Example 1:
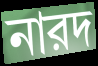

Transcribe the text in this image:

নারদ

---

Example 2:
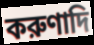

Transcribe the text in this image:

করুণাদি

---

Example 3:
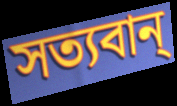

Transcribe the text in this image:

সত্যবান্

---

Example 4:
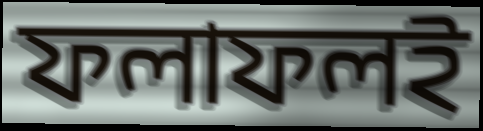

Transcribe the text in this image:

ফলাফলই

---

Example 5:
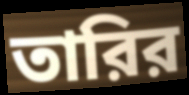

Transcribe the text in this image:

তারির